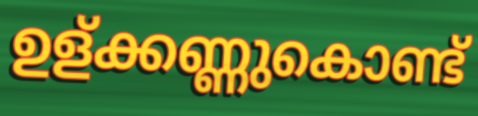
ഉള്ക്കണ്ണുകൊണ്ട്